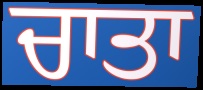
ਚਾਤਾ